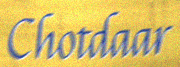
Chotdaar